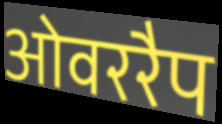
ओवररैप